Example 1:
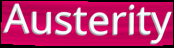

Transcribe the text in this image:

Austerity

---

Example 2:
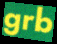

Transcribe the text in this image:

grb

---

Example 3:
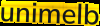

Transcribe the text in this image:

unimelb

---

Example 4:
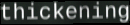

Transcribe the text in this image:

thickening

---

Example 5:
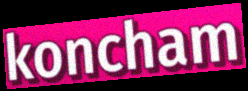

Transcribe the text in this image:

koncham